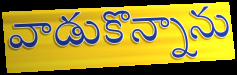
వాడుకొన్నాను